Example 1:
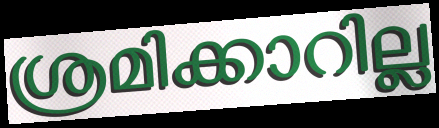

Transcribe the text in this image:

ശ്രമിക്കാറില്ല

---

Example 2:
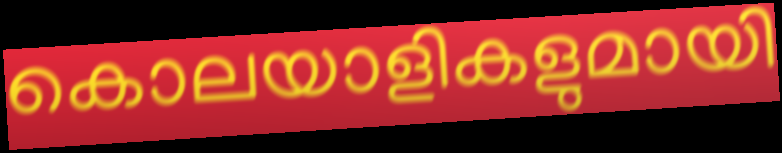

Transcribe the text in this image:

കൊലയാളികളുമായി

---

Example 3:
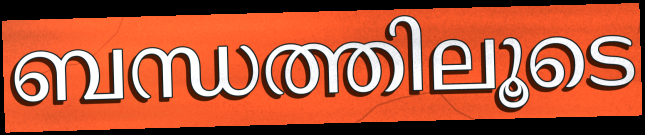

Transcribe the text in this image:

ബന്ധത്തിലൂടെ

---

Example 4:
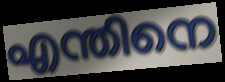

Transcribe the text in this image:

എന്തിനെ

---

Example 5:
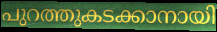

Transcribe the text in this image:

പുറത്തുകടക്കാനായി